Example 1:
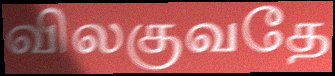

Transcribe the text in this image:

விலகுவதே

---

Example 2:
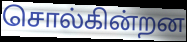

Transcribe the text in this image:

சொல்கின்றன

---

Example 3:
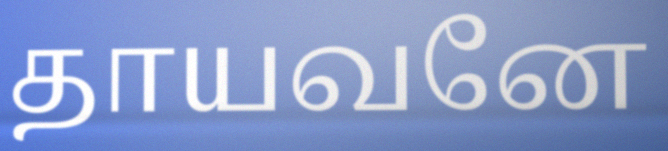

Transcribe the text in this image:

தாயவனே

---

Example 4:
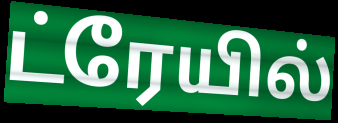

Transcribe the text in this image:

ட்ரேயில்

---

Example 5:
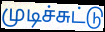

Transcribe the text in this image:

முடிச்சுட்டு